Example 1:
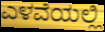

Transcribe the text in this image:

ಎಳವೆಯಲ್ಲಿ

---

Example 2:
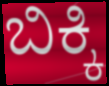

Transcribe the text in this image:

ಬಿಕ್ಕಿ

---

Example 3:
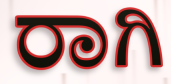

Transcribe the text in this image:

ರಾಗಿ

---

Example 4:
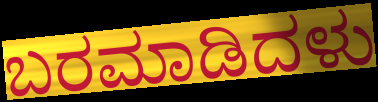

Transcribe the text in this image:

ಬರಮಾಡಿದಳು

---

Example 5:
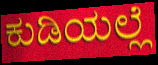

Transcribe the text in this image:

ಕುಡಿಯಲ್ಲೆ